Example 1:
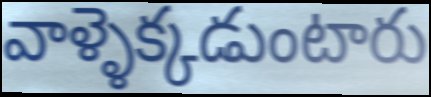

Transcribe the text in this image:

వాళ్ళెక్కడుంటారు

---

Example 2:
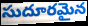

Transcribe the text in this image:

సుదూరమైన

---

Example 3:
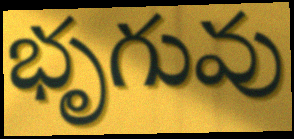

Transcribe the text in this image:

భృగువు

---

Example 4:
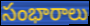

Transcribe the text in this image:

సంభారాలు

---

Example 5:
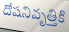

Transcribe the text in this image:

దోషనివృత్తికి